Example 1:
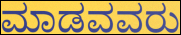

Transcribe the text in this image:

ಮಾಡವವರು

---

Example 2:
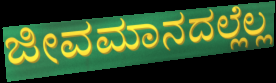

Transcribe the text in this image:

ಜೀವಮಾನದಲ್ಲೆಲ್ಲ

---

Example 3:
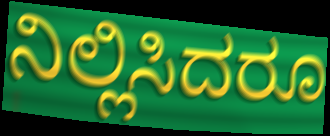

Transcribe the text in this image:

ನಿಲ್ಲಿಸಿದರೂ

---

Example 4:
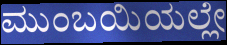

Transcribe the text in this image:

ಮುಂಬಯಿಯಲ್ಲೇ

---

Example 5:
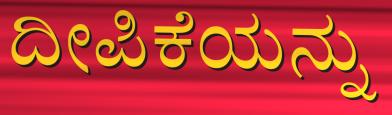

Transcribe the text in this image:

ದೀಪಿಕೆಯನ್ನು